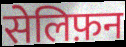
सेलिफ़न